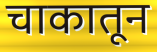
चाकातून